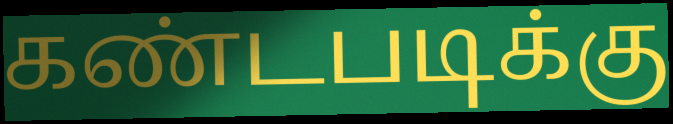
கண்டபடிக்கு